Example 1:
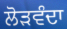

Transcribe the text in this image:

ਲੋੜਵੰਦਾ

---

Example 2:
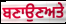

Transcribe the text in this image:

ਬਣਾਉਣਅਤੇ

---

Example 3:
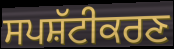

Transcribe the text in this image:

ਸਪਸ਼ੱਟੀਕਰਣ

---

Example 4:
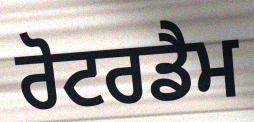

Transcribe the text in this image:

ਰੋਟਰਡੈਮ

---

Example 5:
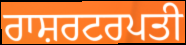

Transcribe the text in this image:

ਰਾਸ਼ਰਟਰਪਤੀ